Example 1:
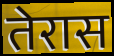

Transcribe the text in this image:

तेरास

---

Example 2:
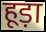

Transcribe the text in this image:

हूड़ा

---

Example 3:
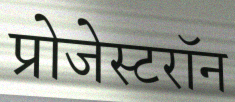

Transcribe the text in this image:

प्रोजेस्टरॉन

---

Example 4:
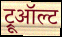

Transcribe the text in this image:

ट्रूऑल्ट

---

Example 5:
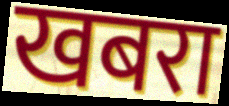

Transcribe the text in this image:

खबरा